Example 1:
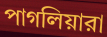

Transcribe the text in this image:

পাগলিয়ারা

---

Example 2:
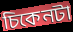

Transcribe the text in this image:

চিকেনটা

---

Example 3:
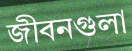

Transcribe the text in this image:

জীবনগুলা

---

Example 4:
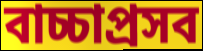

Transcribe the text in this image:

বাচ্চাপ্রসব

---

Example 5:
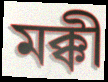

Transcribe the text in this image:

মক্কী